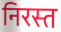
निरस्त